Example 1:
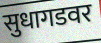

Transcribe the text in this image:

सुधागडवर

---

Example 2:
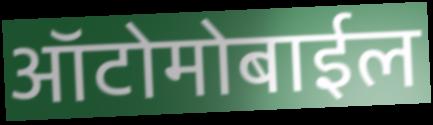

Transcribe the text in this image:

ऑटोमोबाईल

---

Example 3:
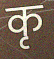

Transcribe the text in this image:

कृ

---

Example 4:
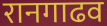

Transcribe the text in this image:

रानगाढव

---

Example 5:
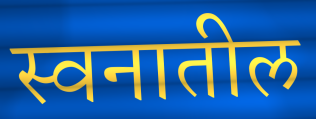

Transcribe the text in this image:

स्वनातील